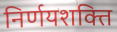
निर्णयशक्ति